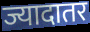
ज्यादातर